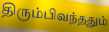
திரும்பிவந்ததும்